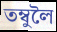
তম্বুলৈ